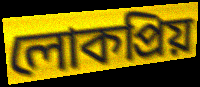
লোকপ্ৰিয়